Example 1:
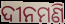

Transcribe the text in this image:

ଦୀନମଣି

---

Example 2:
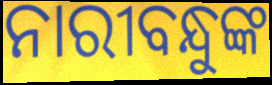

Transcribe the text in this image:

ନାରୀବନ୍ଧୁଙ୍କ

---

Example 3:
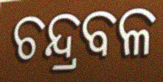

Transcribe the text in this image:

ଚନ୍ଦ୍ରବଳ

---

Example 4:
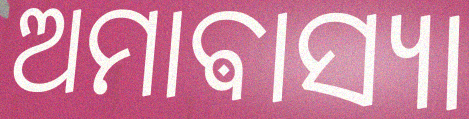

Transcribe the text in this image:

ଅମାଵାସ୍ୟା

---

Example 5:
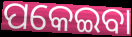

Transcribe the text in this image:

ପକେଇବା